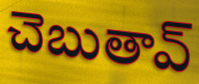
చెబుతావ్